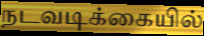
நடவடிக்கையில்